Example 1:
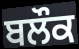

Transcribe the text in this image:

ਬਲੌਕ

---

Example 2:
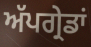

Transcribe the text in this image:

ਅੱਪਗ੍ਰੇਡਾਂ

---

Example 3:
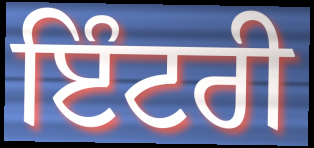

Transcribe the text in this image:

ਇੰਟਰੀ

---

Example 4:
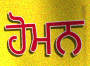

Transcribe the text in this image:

ਹੋਮਨ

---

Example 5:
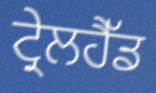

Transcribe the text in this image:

ਟ੍ਰੇਲਹੈੱਡ